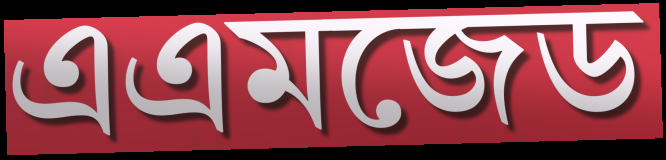
এএমজেড